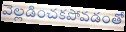
వెల్లడించకపోవడంతో